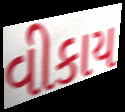
વીકાય